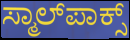
ಸ್ಮಾಲ್‌ಪಾಕ್ಸ್